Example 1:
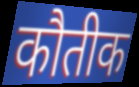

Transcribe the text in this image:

कौतीक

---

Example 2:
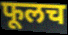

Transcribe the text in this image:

फूलच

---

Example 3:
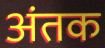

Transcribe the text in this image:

अंतक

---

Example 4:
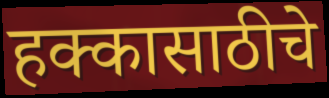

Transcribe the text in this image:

हक्कासाठीचे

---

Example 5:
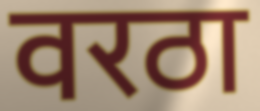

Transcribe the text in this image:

वरठा